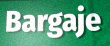
Bargaje